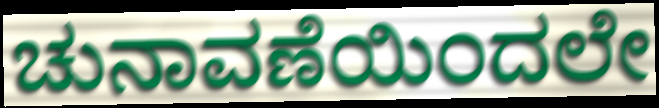
ಚುನಾವಣೆಯಿಂದಲೇ